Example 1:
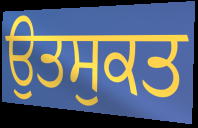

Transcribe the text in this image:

ਉਤਸੁਕਤ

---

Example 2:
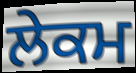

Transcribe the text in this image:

ਲੇਕਮ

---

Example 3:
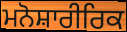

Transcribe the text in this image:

ਮਨੋਸ਼ਾਰੀਰਿਕ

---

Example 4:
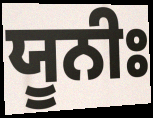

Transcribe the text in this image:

ਯੂਨੀਃ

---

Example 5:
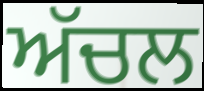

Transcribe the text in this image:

ਅੱਚਲ